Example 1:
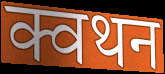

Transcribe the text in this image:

क्वथन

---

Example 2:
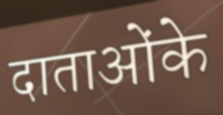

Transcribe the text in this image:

दाताओंके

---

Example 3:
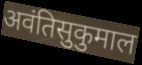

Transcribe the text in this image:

अवंतिसुकुमाल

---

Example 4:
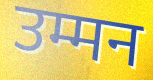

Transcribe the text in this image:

उम्मन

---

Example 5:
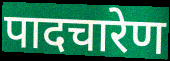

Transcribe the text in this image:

पादचारेण